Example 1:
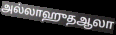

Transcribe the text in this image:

அல்லாஹுதஆலா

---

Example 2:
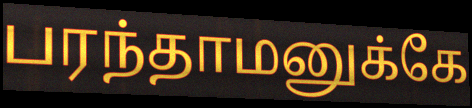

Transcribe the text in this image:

பரந்தாமனுக்கே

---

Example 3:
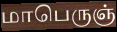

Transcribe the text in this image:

மாபெருஞ்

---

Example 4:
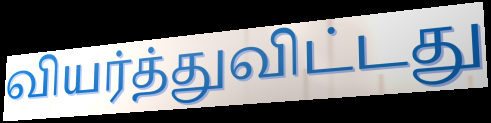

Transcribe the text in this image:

வியர்த்துவிட்டது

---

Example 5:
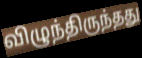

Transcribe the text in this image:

விழுந்திருந்தது